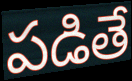
పడితే